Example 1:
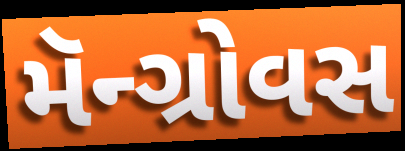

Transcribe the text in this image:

મૅન્ગ્રોવસ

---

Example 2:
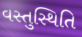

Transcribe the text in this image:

વસ્તુસ્થિતિ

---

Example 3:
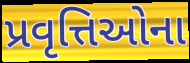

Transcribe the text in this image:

પ્રવૃત્તિઓના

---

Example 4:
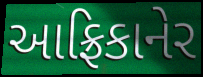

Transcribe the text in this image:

આફ્રિકાનેર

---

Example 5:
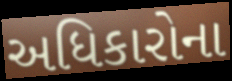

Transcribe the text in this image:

અધિકારોના